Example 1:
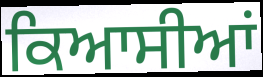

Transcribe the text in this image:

ਕਿਆਸੀਆਂ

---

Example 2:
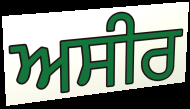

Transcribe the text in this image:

ਅਸੀਰ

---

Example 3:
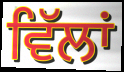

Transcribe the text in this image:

ਵਿੱਲਾਂ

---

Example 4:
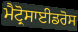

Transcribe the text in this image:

ਮੈਟ੍ਰੋਸਾਈਡਰੋਸ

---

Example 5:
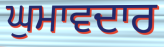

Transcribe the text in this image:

ਘੁਮਾਵਦਾਰ